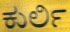
ಕುರ್ಲಿ